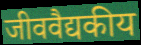
जीववैद्यकीय